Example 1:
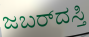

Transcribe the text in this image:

ಜಬರ್‌ದಸ್ತಿ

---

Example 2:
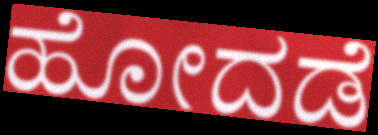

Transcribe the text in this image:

ಹೋದಡೆ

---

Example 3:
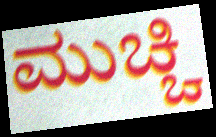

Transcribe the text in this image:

ಮುಚ್ಚಿ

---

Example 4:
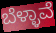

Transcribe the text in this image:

ಬೆಳ್ಳಾವೆ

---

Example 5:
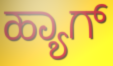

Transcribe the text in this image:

ಹ್ಯಾಗ್